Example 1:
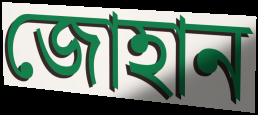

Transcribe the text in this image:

জোহান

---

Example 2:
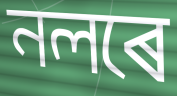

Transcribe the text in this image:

নলৰে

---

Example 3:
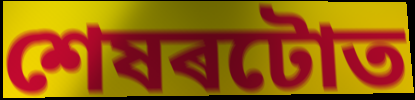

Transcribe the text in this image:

শেষৰটোত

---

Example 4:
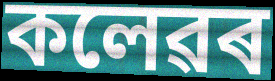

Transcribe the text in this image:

কলেৱৰ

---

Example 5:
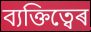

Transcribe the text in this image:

ব্যক্তিত্বেৰ